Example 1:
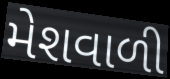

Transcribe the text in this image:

મેશવાળી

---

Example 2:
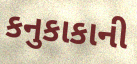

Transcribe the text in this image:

કનુકાકાની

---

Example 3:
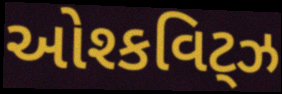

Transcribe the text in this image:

ઓશ્કવિટ્ઝ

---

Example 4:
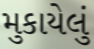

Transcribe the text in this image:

મુકાયેલું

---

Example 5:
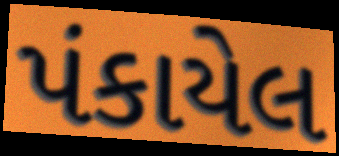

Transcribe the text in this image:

પંકાયેલ